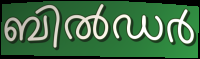
ബിൽഡർ